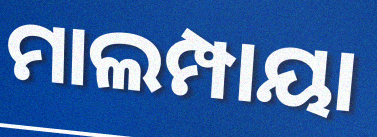
ମାଲମ୍ପାୟା